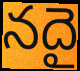
నదై